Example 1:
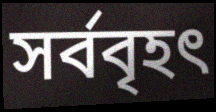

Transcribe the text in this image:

সৰ্ববৃহৎ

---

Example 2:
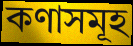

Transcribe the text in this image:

কণাসমূহ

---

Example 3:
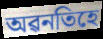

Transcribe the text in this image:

অৱনতিহে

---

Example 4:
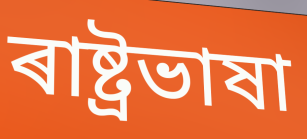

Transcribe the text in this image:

ৰাষ্ট্ৰভাষা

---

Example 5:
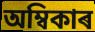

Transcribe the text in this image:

অম্বিকাৰ